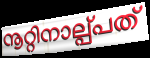
നൂറ്റിനാല്പ്പത്